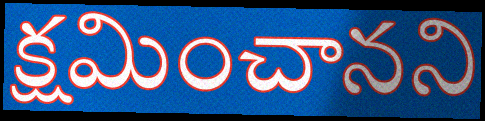
క్షమించానని